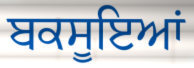
ਬਕਸੂਇਆਂ